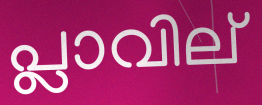
പ്ലാവില്